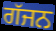
ਗੱਜਨ